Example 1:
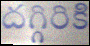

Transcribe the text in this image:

దగ్గిరికి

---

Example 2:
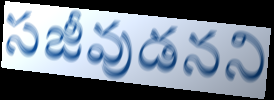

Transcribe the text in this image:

సజీవుడనని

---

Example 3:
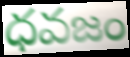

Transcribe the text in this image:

ధవజం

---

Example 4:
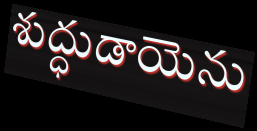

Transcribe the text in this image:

శుద్ధుడాయెను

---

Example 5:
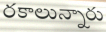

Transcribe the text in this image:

రకాలున్నారు